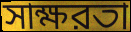
সাক্ষরতা